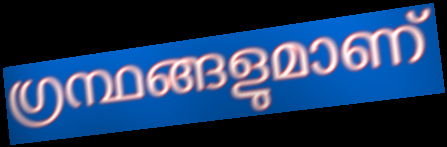
ഗ്രന്ഥങ്ങളുമാണ്